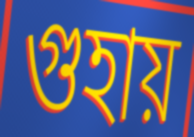
গুহায়